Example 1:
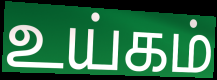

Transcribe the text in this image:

உய்கம்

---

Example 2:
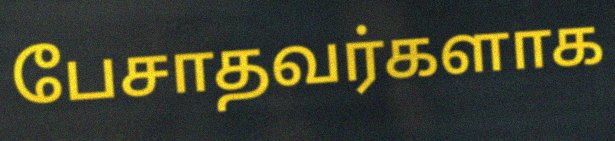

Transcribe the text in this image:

பேசாதவர்களாக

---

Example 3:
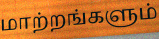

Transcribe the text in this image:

மாற்றங்களும்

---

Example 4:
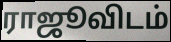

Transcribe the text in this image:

ராஜூவிடம்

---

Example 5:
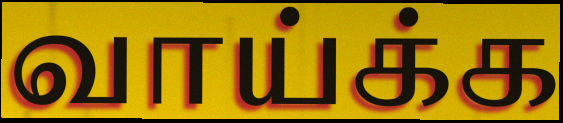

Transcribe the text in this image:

வாய்க்க